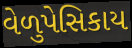
વેળુપેસિકાય